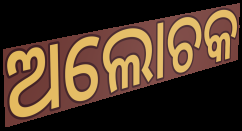
ଅଲୋଚକ